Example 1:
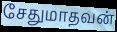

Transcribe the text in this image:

சேதுமாதவன்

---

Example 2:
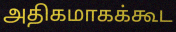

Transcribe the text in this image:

அதிகமாகக்கூட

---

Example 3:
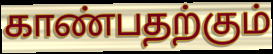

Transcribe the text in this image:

காண்பதற்கும்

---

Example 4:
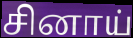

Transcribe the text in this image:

சினாய்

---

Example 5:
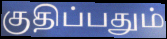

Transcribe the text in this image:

குதிப்பதும்